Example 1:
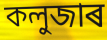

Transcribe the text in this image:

কলুজাৰ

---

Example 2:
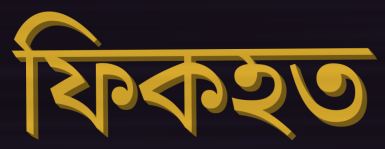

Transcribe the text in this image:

ফিকহত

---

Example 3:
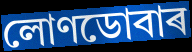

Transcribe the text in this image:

লোণডোবাৰ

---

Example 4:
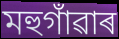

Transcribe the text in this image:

মহুগাঁৱাৰ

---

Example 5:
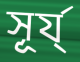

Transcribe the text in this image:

সূৰ্য্